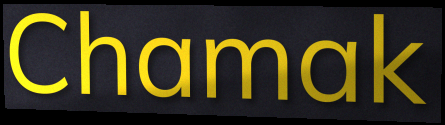
Chamak